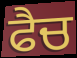
ਫੈਚ